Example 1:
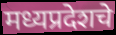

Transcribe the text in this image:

मध्यप्रदेशचे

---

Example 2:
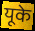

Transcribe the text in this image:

यूके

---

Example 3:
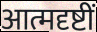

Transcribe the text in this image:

आत्मदृष्टीं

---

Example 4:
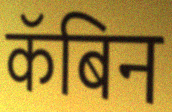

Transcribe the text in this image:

कॅबिन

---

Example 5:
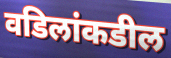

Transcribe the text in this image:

वडिलांकडील